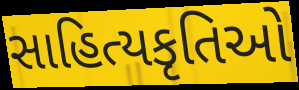
સાહિત્યકૃતિઓ